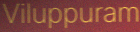
Viluppuram